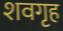
शवगृह